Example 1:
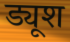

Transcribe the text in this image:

ड्यूश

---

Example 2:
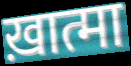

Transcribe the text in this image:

ख़ात्मा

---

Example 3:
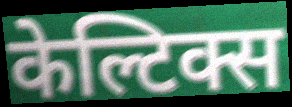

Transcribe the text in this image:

केल्टिक्स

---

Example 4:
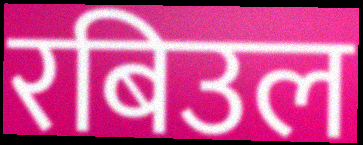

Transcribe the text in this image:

रबिउल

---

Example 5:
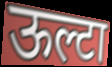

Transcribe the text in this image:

ऊल्टा